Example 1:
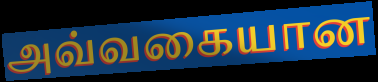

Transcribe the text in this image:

அவ்வகையான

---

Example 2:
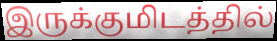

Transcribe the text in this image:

இருக்குமிடத்தில்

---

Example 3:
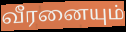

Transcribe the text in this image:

வீரனையும்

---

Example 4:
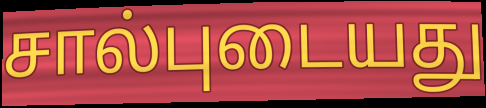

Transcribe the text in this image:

சால்புடையது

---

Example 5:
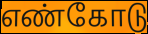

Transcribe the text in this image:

எண்கோடு